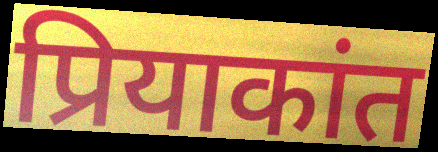
प्रियाकांत